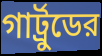
গার্ট্রুডের